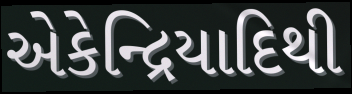
એકેન્દ્રિયાદિથી